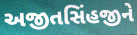
અજીતસિંહજીને